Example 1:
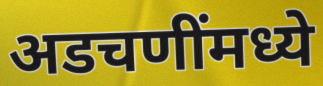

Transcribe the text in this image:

अडचणींमध्ये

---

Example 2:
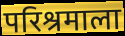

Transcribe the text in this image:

परिश्रमाला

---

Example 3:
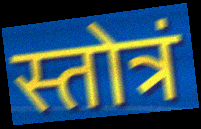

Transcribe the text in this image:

स्तोत्रं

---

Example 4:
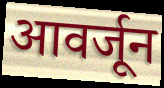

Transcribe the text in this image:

आवर्जून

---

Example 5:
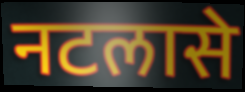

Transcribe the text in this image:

नटलासे